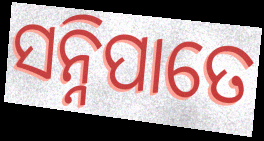
ସନ୍ନିପାତେ